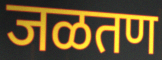
जळतण